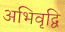
अभिवृद्वि